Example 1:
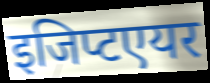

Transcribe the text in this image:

इजिप्टएयर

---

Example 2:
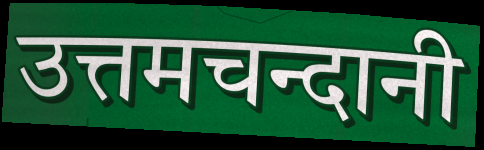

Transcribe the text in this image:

उत्तमचन्दानी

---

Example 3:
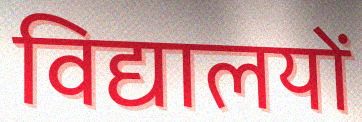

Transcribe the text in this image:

विद्यालयों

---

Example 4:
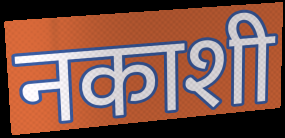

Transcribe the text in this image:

नकाशी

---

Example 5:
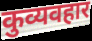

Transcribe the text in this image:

कुव्यवहार